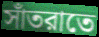
সাঁতরাতে